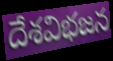
దేశవిభజన